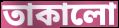
তাকালো